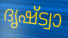
ദൃഷ്ട്വാ